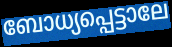
ബോധ്യപ്പെട്ടാലേ